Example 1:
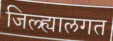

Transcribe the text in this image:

जिल्ह्यालगत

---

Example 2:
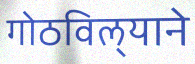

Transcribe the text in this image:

गोठविल्याने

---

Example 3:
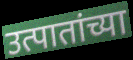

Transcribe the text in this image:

उत्पातांच्या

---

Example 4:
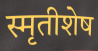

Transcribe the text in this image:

स्मृतीशेष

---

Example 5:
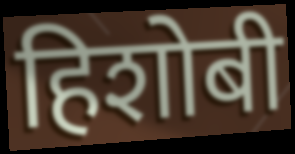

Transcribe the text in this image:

हिशोबी